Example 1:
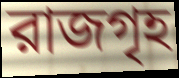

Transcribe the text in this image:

রাজগৃহ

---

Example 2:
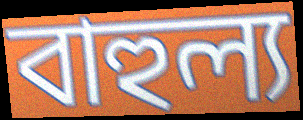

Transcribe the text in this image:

বাহুল্য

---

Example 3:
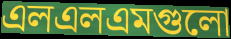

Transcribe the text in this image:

এলএলএমগুলো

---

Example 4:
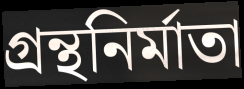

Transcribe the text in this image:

গ্রন্থনির্মাতা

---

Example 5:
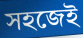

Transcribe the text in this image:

সহজেই